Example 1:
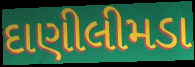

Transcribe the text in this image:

દાણીલીમડા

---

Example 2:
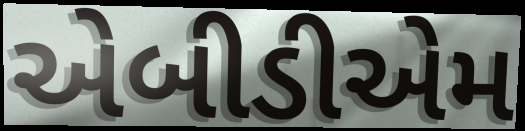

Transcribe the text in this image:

એબીડીએમ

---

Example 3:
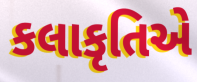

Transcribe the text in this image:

કલાકૃતિએ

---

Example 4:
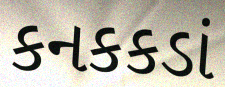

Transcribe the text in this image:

કનકકડાં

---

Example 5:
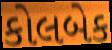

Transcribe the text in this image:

કોલબેક